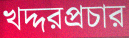
খদ্দরপ্রচার